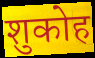
शुकोह